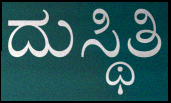
ದುಸ್ಥಿತಿ